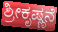
ಶ್ರೀಕೃಷ್ಣನೆ